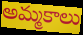
అమ్మకాలు